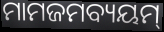
ମାମଜମବ୍ୟୟମ୍